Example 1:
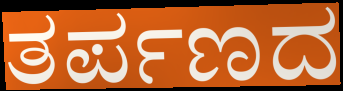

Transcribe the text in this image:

ತರ್ಪಣದ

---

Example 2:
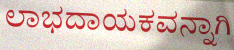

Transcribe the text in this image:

ಲಾಭದಾಯಕವನ್ನಾಗಿ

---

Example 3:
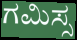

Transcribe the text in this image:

ಗಮಿಸ್ಸ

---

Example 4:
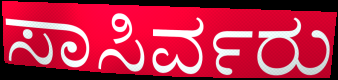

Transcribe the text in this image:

ಸಾಸಿರ್ವರು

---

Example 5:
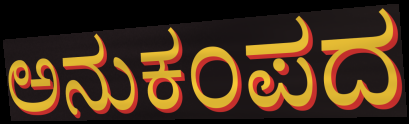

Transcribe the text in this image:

ಅನುಕಂಪದ